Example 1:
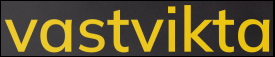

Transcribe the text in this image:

vastvikta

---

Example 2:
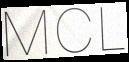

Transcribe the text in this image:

MCL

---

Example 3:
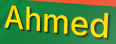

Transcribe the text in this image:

Ahmed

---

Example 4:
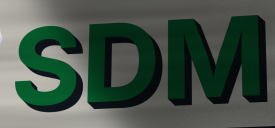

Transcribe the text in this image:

SDM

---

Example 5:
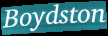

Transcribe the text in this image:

Boydston